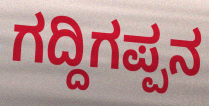
ಗದ್ದಿಗಪ್ಪನ